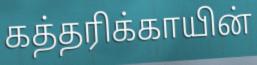
கத்தரிக்காயின்